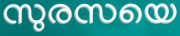
സുരസയെ